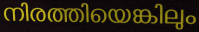
നിരത്തിയെങ്കിലും